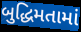
બુદ્ધિમતામાં